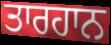
ਤਾਰਹਾਨ